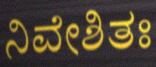
ನಿವೇಶಿತಃ